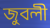
জুবলী